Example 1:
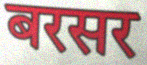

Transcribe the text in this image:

बरसर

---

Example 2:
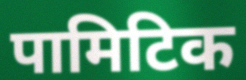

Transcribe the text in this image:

पामिटिक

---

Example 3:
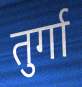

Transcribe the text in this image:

तुर्गा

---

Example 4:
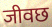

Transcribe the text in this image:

जीवछ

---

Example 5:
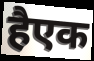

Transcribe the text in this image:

हैएक